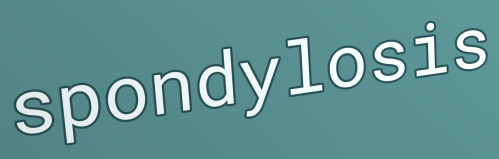
spondylosis